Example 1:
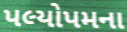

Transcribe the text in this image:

પલ્યોપમના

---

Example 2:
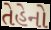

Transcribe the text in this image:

તેહેનો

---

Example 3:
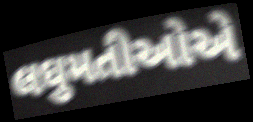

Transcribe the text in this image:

લઘુમતીઓએ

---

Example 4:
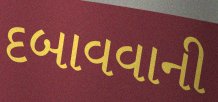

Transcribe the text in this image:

દબાવવાની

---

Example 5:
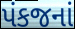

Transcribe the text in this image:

પંકજનાં